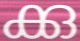
ക്കു